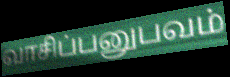
வாசிப்பனுபவம்